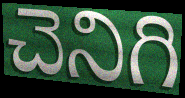
చెనిగి